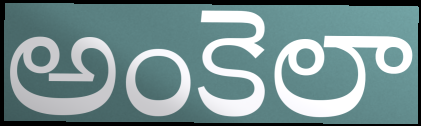
అంకెలా